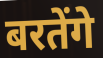
बरतेंगे